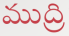
ముద్రి